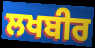
ਲਖਬੀਰ